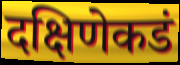
दक्षिणेकडं